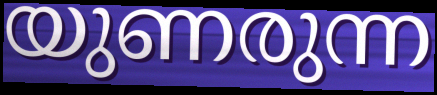
യുണരുന്ന